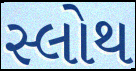
સ્લોથ